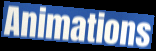
Animations